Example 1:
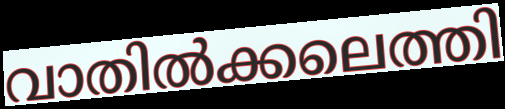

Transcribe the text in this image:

വാതിൽക്കലെത്തി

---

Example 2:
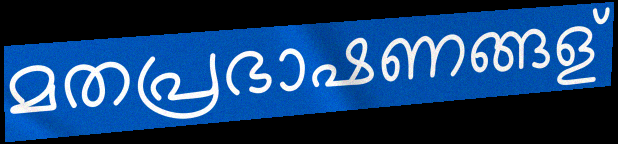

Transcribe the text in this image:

മതപ്രഭാഷണങ്ങള്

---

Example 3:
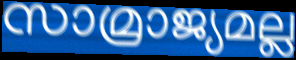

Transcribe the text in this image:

സാമ്രാജ്യമല്ല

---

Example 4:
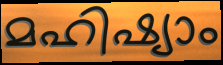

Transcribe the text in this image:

മഹിഷ്യാം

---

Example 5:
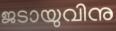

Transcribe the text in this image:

ജടായുവിനു